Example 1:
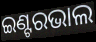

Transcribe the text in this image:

ଇଣ୍ଟରଭାଲ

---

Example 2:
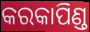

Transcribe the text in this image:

କରକାପିଣ୍ଡ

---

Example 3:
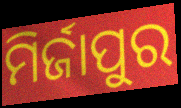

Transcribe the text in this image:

ମିର୍ଜାପୁର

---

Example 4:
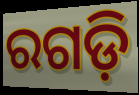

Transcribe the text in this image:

ରଗଡ଼ି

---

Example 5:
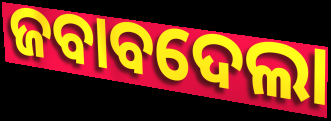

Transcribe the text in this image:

ଜବାବଦେଲା